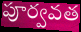
పూర్వవత